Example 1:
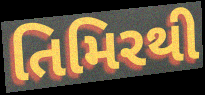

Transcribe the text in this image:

તિમિરથી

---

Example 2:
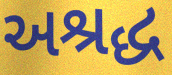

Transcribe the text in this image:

અશ્રદ્ધ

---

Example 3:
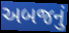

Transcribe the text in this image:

અબજનું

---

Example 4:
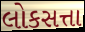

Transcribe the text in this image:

લોકસત્તા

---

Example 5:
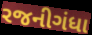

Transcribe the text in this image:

રજનીગંધા